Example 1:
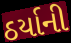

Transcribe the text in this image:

ઠર્યાની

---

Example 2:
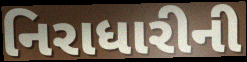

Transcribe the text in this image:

નિરાધારીની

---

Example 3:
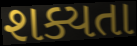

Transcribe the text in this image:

શક્યતા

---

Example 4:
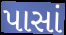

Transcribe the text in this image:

પાસાં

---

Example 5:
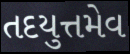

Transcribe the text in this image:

તદયુત્તમેવ